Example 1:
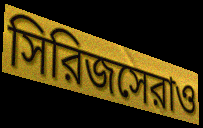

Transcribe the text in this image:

সিরিজসেরাও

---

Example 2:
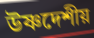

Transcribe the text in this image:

উষ্ণদেশীয়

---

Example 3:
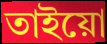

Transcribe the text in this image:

তাইয়ো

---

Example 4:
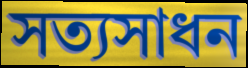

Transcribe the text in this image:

সত্যসাধন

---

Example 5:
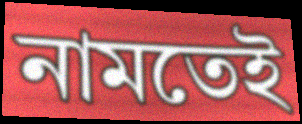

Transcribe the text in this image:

নামতেই